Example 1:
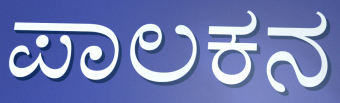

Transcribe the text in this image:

ಪಾಲಕನ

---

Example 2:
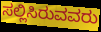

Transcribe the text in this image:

ಸಲ್ಲಿಸಿರುವವರು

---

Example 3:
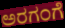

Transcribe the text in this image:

ಅರಗಂಗೆ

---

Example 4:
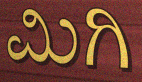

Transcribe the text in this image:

ಮಿಗಿ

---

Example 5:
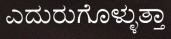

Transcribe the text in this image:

ಎದುರುಗೊಳ್ಳುತ್ತಾ